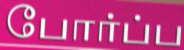
போர்ப்ப